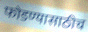
फोडण्यासाठीच